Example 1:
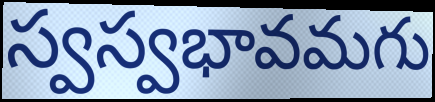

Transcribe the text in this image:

స్వస్వభావమగు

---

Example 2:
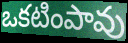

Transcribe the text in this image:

ఒకటింపావు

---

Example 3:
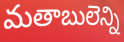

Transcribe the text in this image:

మతాబులెన్ని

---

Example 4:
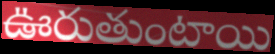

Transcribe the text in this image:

ఊరుతుంటాయి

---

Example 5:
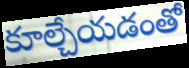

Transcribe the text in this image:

కూల్చేయడంతో